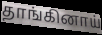
தாங்கினாய்